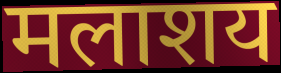
मलाशय